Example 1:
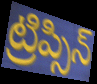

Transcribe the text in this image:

ట్రిప్సిన్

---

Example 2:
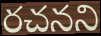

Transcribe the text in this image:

రచనని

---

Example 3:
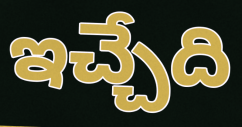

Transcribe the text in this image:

ఇచ్చేది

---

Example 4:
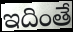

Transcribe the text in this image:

ఇదింతే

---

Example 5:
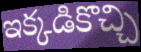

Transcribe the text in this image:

ఇక్కడికొచ్చి